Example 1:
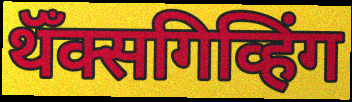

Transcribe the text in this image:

थॅँक्सगिव्हिंग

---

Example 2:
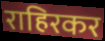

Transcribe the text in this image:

राहिरकर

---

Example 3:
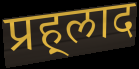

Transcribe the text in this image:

प्रह्‌लाद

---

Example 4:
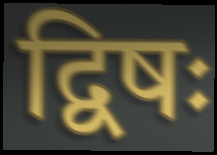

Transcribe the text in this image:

द्विषः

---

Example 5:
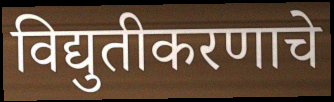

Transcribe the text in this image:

विद्युतीकरणाचे